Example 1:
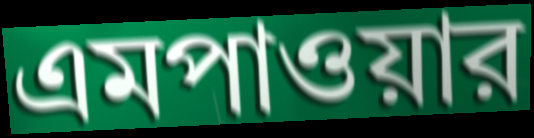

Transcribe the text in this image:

এমপাওয়ার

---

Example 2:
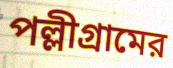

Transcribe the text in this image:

পল্লীগ্রামের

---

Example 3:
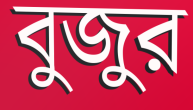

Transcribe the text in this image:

বুজুর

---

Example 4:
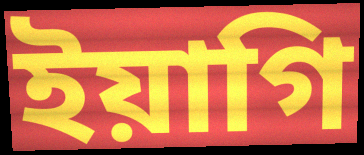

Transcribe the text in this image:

ইয়াগি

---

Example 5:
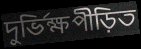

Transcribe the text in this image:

দুর্ভিক্ষপীড়িত